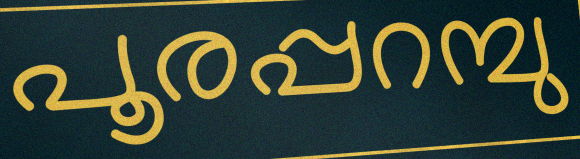
പൂരപ്പറമ്പു